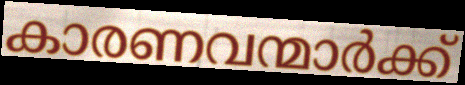
കാരണവന്മാർക്ക്